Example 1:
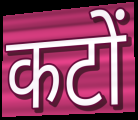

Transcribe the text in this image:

कटों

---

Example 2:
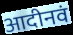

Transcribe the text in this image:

आदीनवं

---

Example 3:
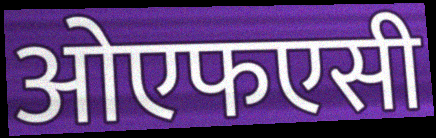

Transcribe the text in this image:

ओएफएसी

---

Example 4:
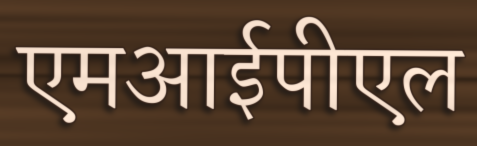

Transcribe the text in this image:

एमआईपीएल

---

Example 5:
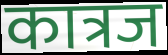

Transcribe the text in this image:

कात्रज